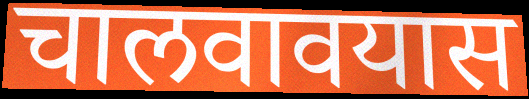
चालवावयास